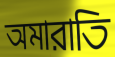
অমারাতি